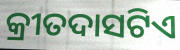
କ୍ରୀତଦାସଟିଏ